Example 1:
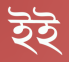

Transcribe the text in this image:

ইই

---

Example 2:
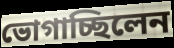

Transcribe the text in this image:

ভোগাচ্ছিলেন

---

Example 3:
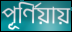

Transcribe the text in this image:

পূর্ণিয়ায়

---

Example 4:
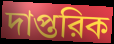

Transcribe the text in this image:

দাপ্তরিক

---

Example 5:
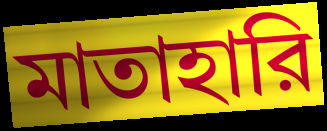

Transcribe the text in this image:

মাতাহারি